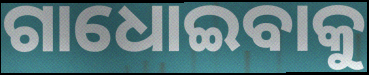
ଗାଧୋଇବାକୁ